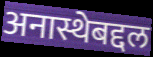
अनास्थेबद्दल